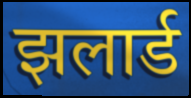
झलार्ड